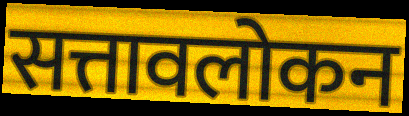
सत्तावलोकन